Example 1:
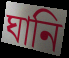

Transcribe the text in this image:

ঘানি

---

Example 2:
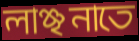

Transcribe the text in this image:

লাঞ্ছনাতে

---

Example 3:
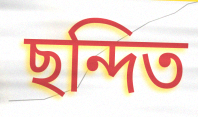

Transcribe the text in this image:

ছন্দিত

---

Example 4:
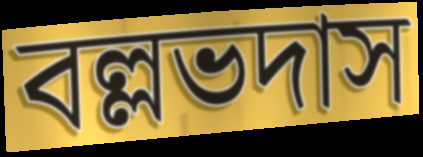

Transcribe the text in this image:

বল্লভদাস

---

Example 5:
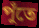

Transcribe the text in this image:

পুঁতে